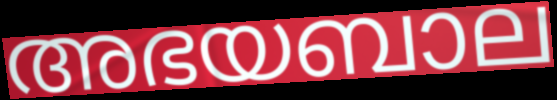
അഭയബാല